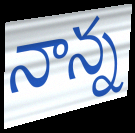
నాన్న